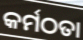
କର୍ମଠତା